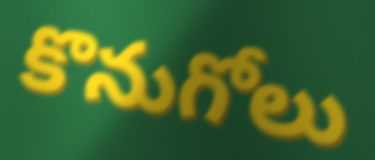
కొనుగోలు